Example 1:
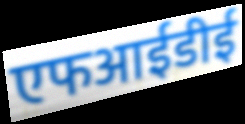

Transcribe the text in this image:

एफआईडीई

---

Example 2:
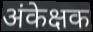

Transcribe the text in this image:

अंकेक्षक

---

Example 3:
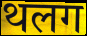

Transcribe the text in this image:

थलग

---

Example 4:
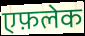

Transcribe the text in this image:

एफ़लेक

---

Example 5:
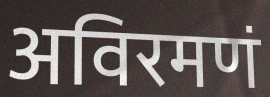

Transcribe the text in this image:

अविरमणं